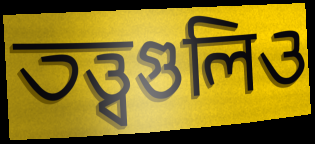
তত্ত্বগুলিও